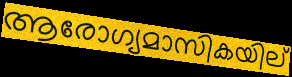
ആരോഗ്യമാസികയില്